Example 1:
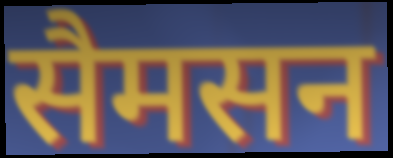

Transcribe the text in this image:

सैमसन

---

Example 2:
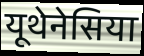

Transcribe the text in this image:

यूथेनेसिया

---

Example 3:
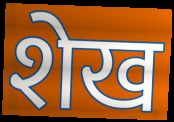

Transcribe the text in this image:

शेख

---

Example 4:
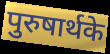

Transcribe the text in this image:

पुरुषार्थके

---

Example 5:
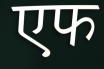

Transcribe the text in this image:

एफ